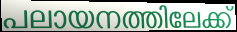
പലായനത്തിലേക്ക്